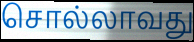
சொல்லாவது